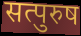
सत्पुरुष